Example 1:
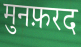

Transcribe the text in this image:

मुनफ़रद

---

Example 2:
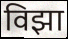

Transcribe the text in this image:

विझा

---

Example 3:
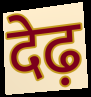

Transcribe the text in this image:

देढ़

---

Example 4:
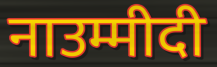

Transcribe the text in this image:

नाउम्मीदी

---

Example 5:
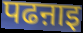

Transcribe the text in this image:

पढऩाइ